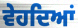
ਵੇਹਦਿਆਂ